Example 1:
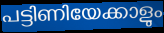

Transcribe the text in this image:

പട്ടിണിയേക്കാളും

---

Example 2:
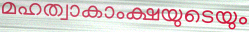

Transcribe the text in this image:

മഹത്വാകാംക്ഷയുടെയും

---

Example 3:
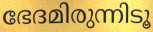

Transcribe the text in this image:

ഭേദമിരുന്നിടൂ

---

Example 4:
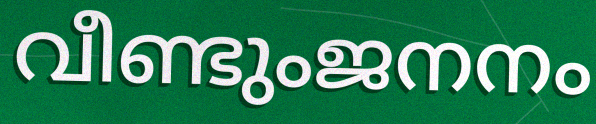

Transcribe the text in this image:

വീണ്ടുംജനനം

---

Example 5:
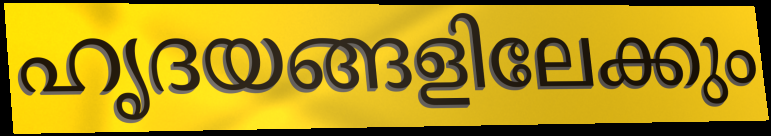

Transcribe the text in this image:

ഹൃദയങ്ങളിലേക്കും